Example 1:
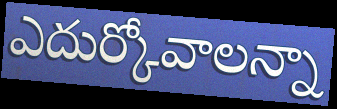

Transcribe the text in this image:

ఎదుర్కోవాలన్నా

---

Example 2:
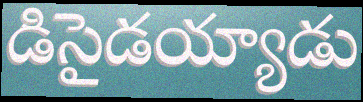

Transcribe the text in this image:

డిసైడయ్యాడు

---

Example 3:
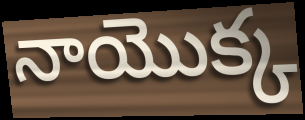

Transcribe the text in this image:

నాయొక్క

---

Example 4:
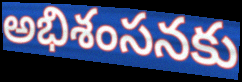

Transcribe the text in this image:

అభిశంసనకు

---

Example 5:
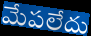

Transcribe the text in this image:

మేపలేదు